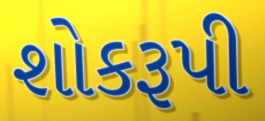
શોકરૂપી